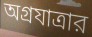
অগ্রযাত্রার